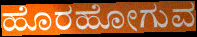
ಹೊರಹೋಗುವ